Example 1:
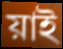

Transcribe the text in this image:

য়াই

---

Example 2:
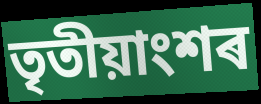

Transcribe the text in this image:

তৃতীয়াংশৰ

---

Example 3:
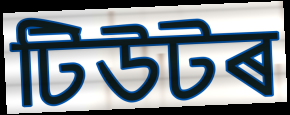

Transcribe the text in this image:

টিউটৰ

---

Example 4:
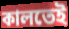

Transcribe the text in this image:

কালতেই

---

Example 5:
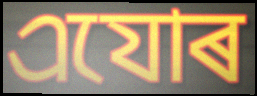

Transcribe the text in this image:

এযোৰ